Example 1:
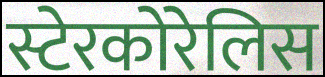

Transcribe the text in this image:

स्टेरकोरेलिस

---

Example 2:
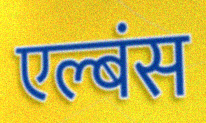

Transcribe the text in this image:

एल्बंस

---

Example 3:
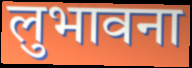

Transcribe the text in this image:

लुभावना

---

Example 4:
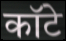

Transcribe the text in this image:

कॉटे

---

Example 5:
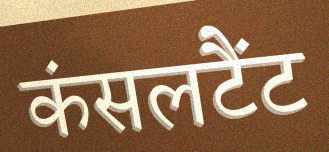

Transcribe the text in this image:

कंसलटैंट